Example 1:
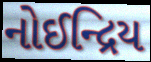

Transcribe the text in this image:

નોઈન્દ્રિય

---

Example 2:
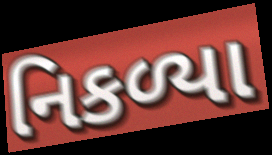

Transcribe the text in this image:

નિકળ્યા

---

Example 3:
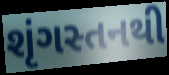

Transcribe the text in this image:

શૃંગસ્તનથી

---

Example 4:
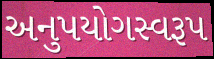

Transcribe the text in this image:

અનુપયોગસ્વરૂપ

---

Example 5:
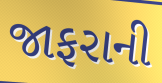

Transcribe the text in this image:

જાફરાની